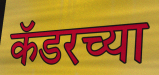
कॅडरच्या